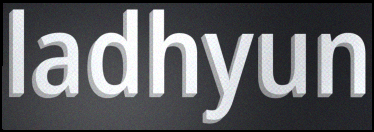
ladhyun